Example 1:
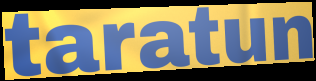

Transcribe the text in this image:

taratun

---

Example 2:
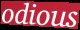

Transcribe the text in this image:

odious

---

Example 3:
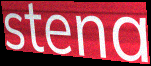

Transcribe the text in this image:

stena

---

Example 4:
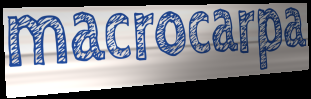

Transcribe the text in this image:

macrocarpa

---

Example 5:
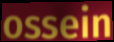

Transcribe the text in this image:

ossein